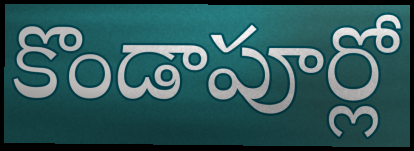
కొండాపూర్లో